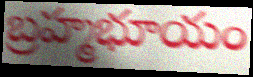
బ్రహ్మభూయం